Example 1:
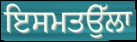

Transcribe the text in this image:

ਇਸਮਤਉੱਲਾ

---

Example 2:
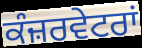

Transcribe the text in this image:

ਕੰਜ਼ਰਵੇਟਰਾਂ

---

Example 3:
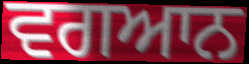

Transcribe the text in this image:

ਵਗਆਨ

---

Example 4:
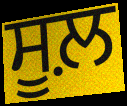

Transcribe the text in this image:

ਸੂਲ਼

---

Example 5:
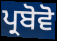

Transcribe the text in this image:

ਪ੍ਰਬੋਵੋ